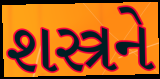
શસ્ત્રને